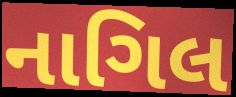
નાગિલ